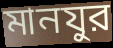
মানযুর